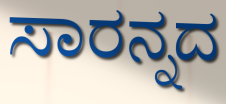
ಸಾರನ್ನದ